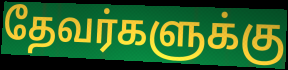
தேவர்களுக்கு